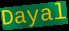
Dayal